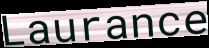
Laurance